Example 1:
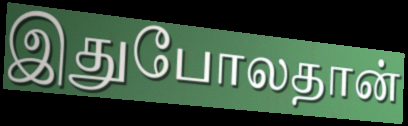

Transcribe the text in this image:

இதுபோலதான்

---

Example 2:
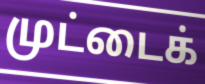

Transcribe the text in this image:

முட்டைக்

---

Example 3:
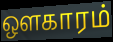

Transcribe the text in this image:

ஔகாரம்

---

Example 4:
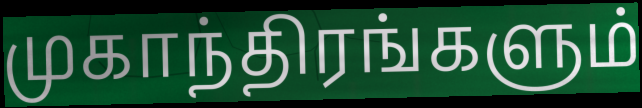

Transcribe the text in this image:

முகாந்திரங்களும்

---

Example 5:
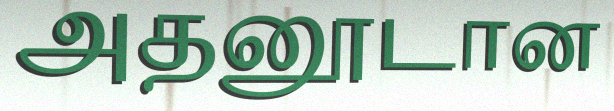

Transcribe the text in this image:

அதனூடான